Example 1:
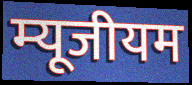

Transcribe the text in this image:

म्यूजीयम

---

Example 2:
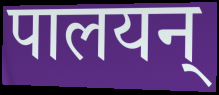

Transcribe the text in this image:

पालयन्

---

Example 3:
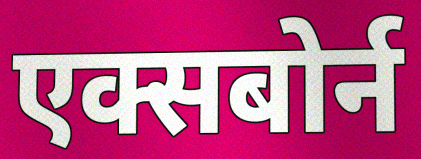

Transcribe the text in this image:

एक्सबोर्न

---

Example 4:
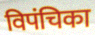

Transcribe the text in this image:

विपंचिका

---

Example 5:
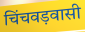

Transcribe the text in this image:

चिंचवड़वासी